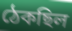
ঠেকছিল